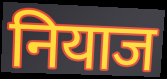
नियाज